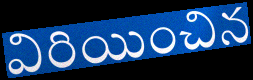
విరియించిన